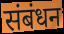
संबंधन